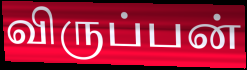
விருப்பன்